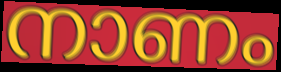
നാണം